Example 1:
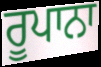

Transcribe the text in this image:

ਰੂਪਾਨਾ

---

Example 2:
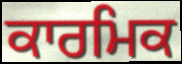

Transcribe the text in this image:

ਕਾਰਮਿਕ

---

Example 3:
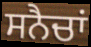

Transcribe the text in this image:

ਸਨੈਚਾਂ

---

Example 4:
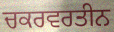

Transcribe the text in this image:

ਚਕਰਵਰਤੀਨ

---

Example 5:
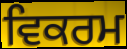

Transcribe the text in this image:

ਵਿਕਰਮ